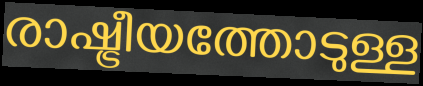
രാഷ്ട്രീയത്തോടുള്ള